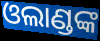
ଓଲାଣ୍ଡଙ୍କ